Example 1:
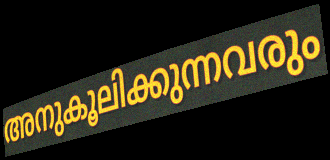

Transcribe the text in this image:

അനുകൂലിക്കുന്നവരും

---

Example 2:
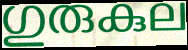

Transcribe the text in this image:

ഗുരുകുല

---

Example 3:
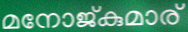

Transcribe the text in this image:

മനോജ്കുമാര്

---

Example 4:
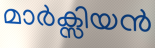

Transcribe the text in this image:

മാർക്സിയൻ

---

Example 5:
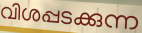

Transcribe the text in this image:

വിശപ്പടക്കുന്ന